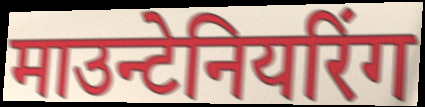
माउन्टेनियरिंग